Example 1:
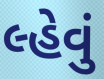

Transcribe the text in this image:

લ્હેવું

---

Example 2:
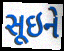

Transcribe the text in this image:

સૂઇને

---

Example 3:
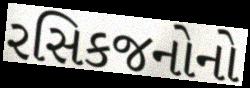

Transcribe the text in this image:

રસિકજનોનો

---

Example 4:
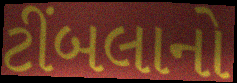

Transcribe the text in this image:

ટીંબલાનો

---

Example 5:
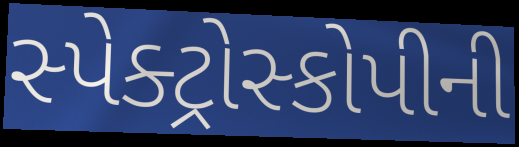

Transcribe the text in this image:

સ્પેક્ટ્રોસ્કોપીની